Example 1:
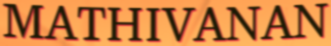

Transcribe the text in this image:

MATHIVANAN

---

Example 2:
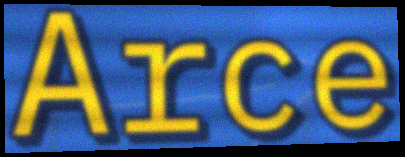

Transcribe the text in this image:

Arce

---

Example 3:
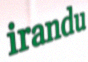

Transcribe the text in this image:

irandu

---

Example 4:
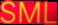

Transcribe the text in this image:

SML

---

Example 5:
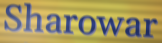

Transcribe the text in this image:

Sharowar